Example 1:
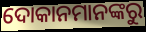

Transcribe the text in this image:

ଦୋକାନମାନଙ୍କରୁ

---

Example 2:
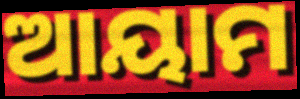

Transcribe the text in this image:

ଆୟାମ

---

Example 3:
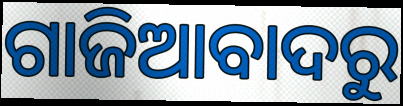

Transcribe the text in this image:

ଗାଜିଆବାଦରୁ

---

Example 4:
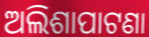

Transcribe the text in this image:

ଅଲିଶାପାଟଣା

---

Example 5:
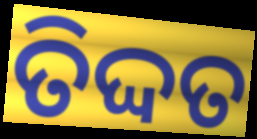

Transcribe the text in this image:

ତିଦ୍ଦତ